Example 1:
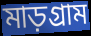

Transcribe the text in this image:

মাড়গ্রাম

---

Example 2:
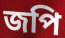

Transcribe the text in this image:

জপি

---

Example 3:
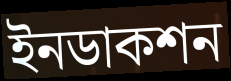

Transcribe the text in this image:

ইনডাকশন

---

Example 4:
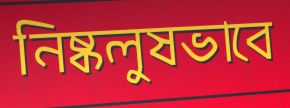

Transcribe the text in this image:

নিষ্কলুষভাবে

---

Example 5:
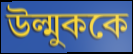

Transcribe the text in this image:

উল্মুককে